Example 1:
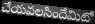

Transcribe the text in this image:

చేయవలసిందేమిటో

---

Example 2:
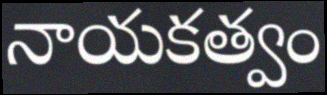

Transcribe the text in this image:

నాయకత్వం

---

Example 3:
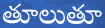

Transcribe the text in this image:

తూలుతూ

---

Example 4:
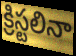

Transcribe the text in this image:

క్రిస్టలినా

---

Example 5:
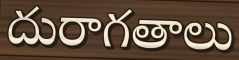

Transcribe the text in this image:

దురాగతాలు